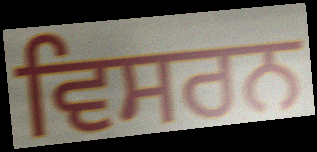
ਵਿਸਰਨ